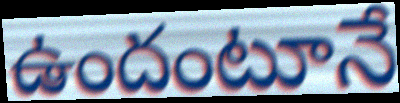
ఉందంటూనే